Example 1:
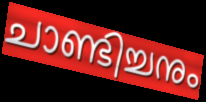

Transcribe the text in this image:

ചാണ്ടിച്ചനും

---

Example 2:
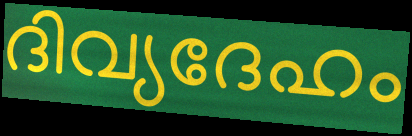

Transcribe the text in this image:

ദിവ്യദേഹം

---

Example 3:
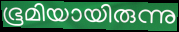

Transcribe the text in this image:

ഭൂമിയായിരുന്നു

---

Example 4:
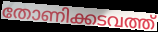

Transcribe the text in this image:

തോണിക്കടവത്ത്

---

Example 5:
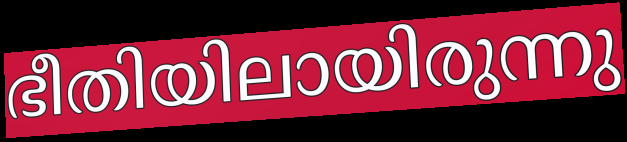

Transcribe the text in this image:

ഭീതിയിലായിരുന്നു